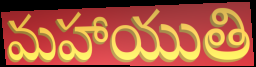
మహాయుతి